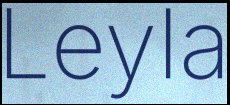
Leyla